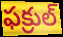
ఫక్రుల్